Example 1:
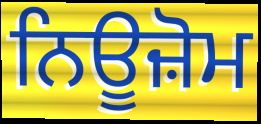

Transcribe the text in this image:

ਨਿਊਜ਼ੋਮ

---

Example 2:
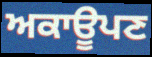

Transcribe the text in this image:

ਅਕਾਊਪਣ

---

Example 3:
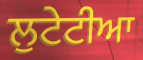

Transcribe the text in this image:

ਲੁਟੇਟੀਆ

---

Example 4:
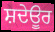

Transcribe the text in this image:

ਸ਼ਦੇਊਰ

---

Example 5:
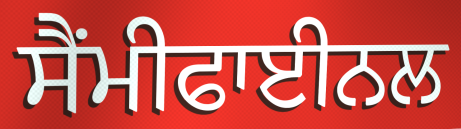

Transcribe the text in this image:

ਸੈਂਮੀਫਾਈਨਲ